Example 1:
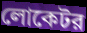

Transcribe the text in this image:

লোকেটর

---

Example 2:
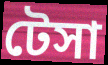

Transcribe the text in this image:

টেসা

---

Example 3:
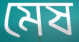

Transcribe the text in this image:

মেষ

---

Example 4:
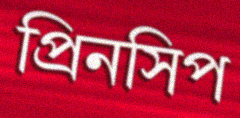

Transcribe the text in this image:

প্রিনসিপ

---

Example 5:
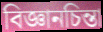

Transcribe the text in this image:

বিজ্ঞানচিন্তা